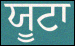
ਯੂਟਾ